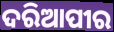
ଦରିଆପୀର